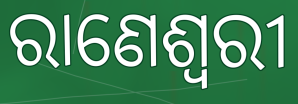
ରାଣେଶ୍ୱରୀ